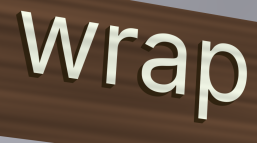
wrap